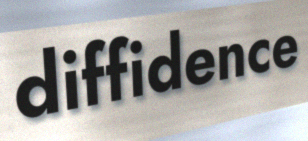
diffidence